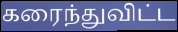
கரைந்துவிட்ட